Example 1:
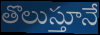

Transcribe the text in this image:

తొలుస్తూనే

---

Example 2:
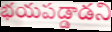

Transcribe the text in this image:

భయపడ్డాడని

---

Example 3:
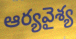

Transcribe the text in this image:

ఆర్యవైశ్య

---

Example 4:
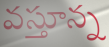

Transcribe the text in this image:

వస్తూన్న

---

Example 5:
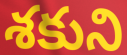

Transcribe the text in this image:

శకుని